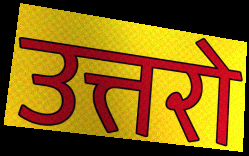
उत्तरो